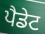
ਪੈਡੇਟ